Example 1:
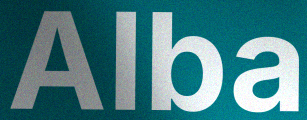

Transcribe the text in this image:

Alba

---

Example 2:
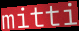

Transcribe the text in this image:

mitti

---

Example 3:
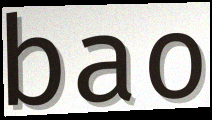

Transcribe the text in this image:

bao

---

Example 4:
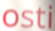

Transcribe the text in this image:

osti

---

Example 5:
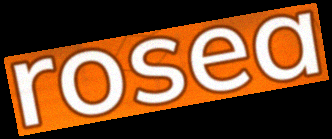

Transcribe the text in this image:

rosea